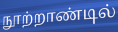
நூற்றாண்டில்